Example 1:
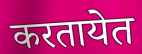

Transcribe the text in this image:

करतायेत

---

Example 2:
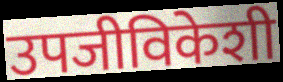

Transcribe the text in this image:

उपजीविकेशी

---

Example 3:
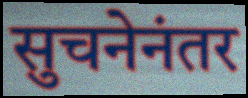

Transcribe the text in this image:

सुचनेनंतर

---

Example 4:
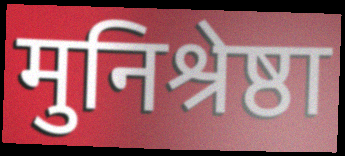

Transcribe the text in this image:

मुनिश्रेष्ठा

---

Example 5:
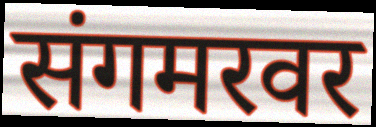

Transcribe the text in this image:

संगमरवर